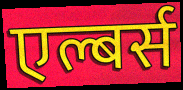
एल्बर्स